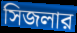
সিজলার